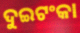
ଦୁଇଟଂକା